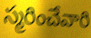
స్మరించేవారి